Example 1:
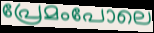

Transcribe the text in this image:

പ്രേമംപോലെ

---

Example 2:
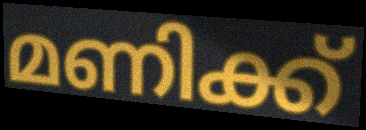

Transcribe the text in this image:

മണിക്ക്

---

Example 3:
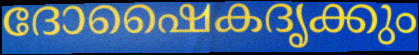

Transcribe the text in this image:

ദോഷൈകദൃക്കും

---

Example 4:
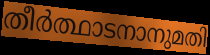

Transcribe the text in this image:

തീർത്ഥാടനാനുമതി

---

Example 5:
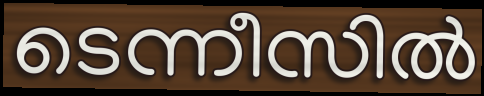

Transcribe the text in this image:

ടെന്നീസിൽ